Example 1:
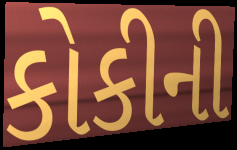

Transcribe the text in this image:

કોકીની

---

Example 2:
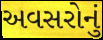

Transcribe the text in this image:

અવસરોનું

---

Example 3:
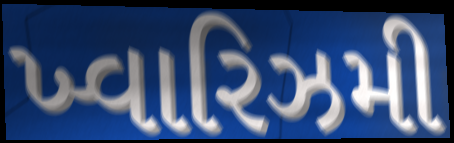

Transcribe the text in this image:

ખ્વારિઝમી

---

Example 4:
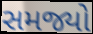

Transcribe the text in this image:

સમજ્યો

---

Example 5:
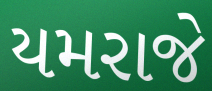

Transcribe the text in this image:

યમરાજે